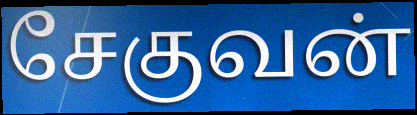
சேகுவன்